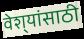
वेश्यांसाठी